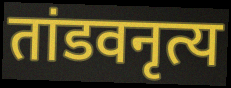
तांडवनृत्य